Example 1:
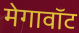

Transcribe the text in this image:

मेगावॉट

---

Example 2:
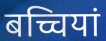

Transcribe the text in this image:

बच्चियां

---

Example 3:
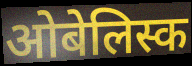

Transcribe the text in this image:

ओबेलिस्क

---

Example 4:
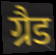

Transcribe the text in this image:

ग्रैड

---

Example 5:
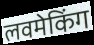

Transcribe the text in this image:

लवमेकिंग